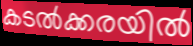
കടൽക്കരയിൽ